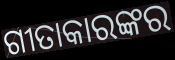
ଗୀତାକାରଙ୍କର